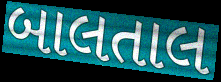
બાલતાલ